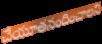
చేయూతనందించాలని